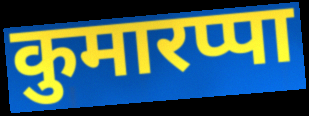
कुमारप्पा